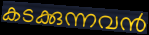
കടക്കുന്നവൻ